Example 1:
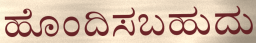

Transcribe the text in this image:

ಹೊಂದಿಸಬಹುದು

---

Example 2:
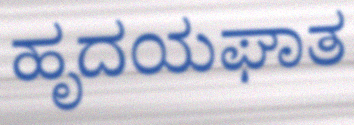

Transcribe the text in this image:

ಹೃದಯಘಾತ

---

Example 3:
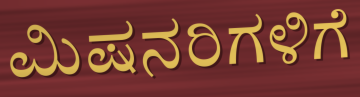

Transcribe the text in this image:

ಮಿಷನರಿಗಳಿಗೆ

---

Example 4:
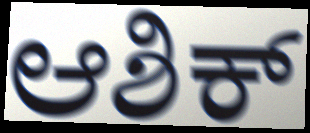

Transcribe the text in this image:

ಆಶಿಕ್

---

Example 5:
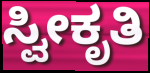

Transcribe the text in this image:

ಸ್ವೀಕೃತಿ